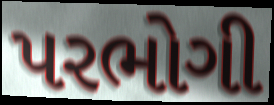
પરભોગી